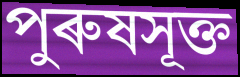
পুৰুষসূক্ত